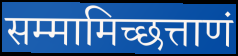
सम्मामिच्छत्ताणं